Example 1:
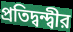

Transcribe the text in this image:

প্রতিদ্বন্দ্বীর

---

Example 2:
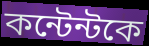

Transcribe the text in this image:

কন্টেন্টকে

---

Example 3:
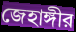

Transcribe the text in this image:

জেহাঙ্গীর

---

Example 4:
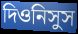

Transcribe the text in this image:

দিওনিসুস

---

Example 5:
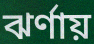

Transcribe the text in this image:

ঝর্ণায়